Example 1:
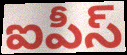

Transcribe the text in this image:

ఐపీస్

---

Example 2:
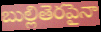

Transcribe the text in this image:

బుల్లితెరపైనా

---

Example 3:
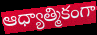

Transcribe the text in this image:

ఆధ్యాత్మికంగా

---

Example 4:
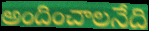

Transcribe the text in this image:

అందించాలనేది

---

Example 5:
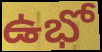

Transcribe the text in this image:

ఉభో